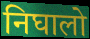
निघालो